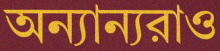
অন্যান্যরাও